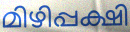
മിഴിപ്പക്ഷി